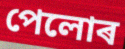
পেলোৰ